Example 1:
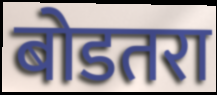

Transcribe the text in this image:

बोडतरा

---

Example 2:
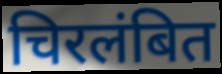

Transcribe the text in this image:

चिरलंबित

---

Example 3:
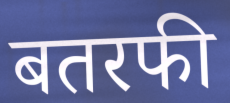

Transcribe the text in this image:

बतरफी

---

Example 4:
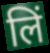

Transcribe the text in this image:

लिं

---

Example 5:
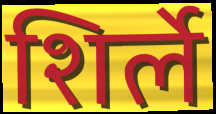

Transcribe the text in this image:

शिर्ले